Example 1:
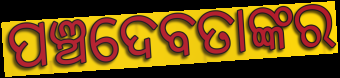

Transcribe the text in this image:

ପଞ୍ଚଦେବତାଙ୍କର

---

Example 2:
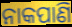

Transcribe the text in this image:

ନାକପାଣି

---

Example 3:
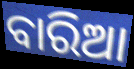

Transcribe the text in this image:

ବାରିଆ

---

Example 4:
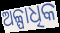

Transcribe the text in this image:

ଅଳ୍ପାଧିକ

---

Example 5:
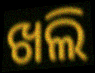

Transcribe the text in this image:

ଖଲି